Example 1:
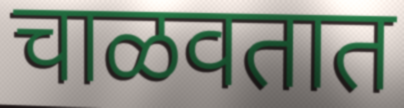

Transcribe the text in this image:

चाळवतात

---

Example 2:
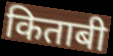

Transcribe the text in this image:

किताबी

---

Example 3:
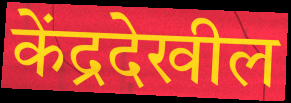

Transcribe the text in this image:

केंद्रदेखील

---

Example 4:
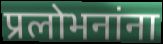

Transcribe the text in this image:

प्रलोभनांना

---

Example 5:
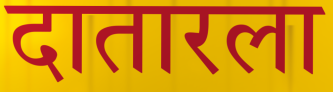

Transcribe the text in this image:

दातारला